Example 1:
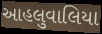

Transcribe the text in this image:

આહલુવાલિયા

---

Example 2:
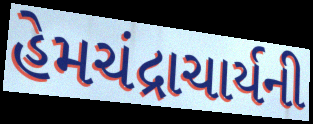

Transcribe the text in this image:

હેમચંદ્રાચાર્યની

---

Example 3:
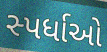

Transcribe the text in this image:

સ્પર્ધાઓ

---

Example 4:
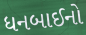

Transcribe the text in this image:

ધનબાઈનો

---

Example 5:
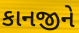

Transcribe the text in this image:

કાનજીને